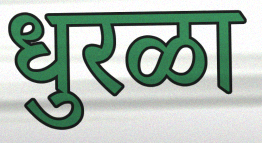
धुरळा